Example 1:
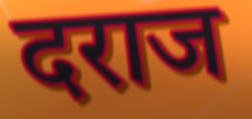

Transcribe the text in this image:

दराज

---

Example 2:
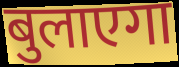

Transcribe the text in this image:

बुलाएगा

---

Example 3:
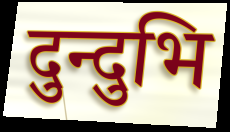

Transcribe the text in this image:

दुन्दुभि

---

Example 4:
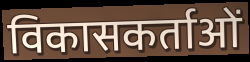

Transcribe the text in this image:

विकासकर्ताओं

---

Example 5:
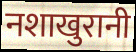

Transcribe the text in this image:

नशाखुरानी